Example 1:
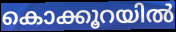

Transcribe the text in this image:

കൊക്കൂറയിൽ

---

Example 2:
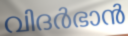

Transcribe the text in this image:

വിദർഭാൻ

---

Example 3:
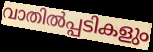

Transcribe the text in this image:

വാതിൽപ്പടികളും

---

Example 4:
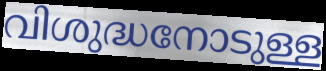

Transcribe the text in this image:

വിശുദ്ധനോടുള്ള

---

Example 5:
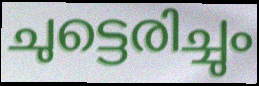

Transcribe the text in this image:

ചുട്ടെരിച്ചും